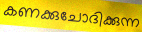
കണക്കുചോദിക്കുന്ന